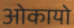
ओकायो